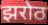
झरोठ